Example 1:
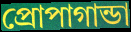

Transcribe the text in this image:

প্রোপাগান্ডা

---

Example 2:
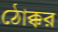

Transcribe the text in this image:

ঠোক্কর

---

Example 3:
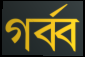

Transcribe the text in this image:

গর্ব্ব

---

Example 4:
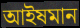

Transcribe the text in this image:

আইষমান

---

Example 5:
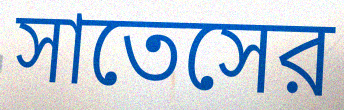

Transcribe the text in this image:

সাতেসের